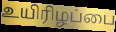
உயிரிழப்பை